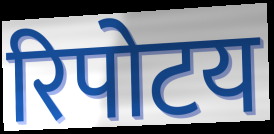
रिपोटय